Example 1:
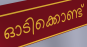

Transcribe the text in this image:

ഓടിക്കൊണ്ട്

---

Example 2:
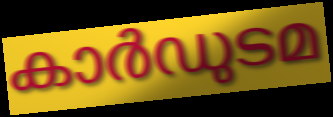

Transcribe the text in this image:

കാർഡുടമ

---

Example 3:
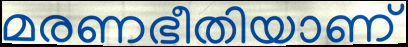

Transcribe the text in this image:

മരണഭീതിയാണ്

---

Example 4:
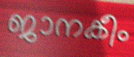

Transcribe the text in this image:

ജാനകീം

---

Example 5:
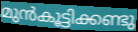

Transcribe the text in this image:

മുൻകൂട്ടിക്കണ്ടു